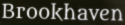
Brookhaven